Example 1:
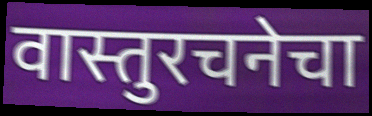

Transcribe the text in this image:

वास्तुरचनेचा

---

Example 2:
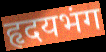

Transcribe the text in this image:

हृदयभंग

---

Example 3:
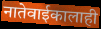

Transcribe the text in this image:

नातेवाईकालाही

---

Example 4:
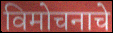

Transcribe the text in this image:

विमोचनाचे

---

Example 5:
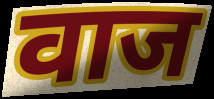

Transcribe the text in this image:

वाज